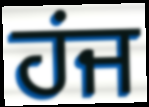
ਹਂਜ